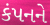
કંપનને